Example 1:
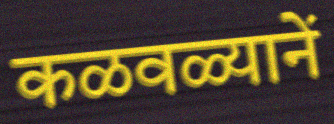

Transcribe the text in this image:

कळवळ्यानें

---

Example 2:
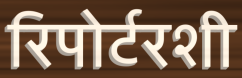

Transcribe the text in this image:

रिपोर्टरशी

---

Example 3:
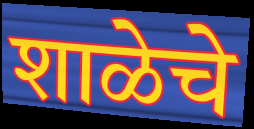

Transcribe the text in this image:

शाळेचे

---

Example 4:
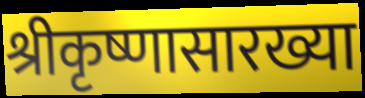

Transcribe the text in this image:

श्रीकृष्णासारख्या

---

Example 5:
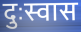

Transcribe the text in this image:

दुःस्वास